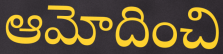
ఆమోదించి